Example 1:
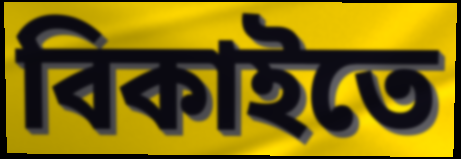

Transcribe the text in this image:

বিকাইতে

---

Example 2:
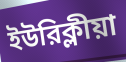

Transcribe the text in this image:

ইউরিক্লীয়া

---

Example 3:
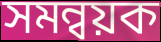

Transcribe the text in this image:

সমন্বয়ক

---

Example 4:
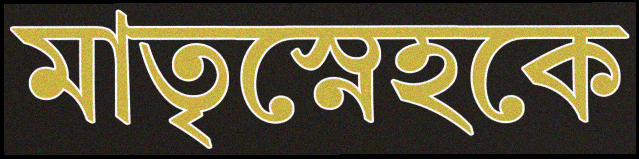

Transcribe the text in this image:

মাতৃস্নেহকে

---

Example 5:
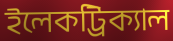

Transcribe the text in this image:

ইলেকট্রিক্যাল